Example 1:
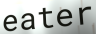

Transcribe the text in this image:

eater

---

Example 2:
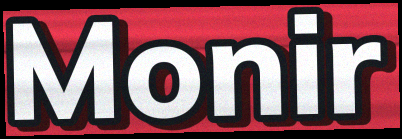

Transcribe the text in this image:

Monir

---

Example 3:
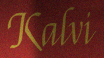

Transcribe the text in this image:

Kalvi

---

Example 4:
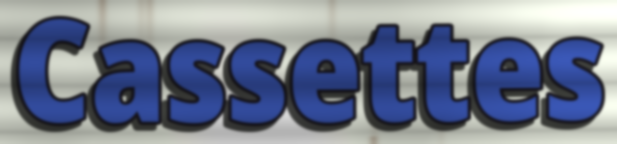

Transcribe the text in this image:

Cassettes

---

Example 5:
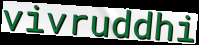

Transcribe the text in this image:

vivruddhi